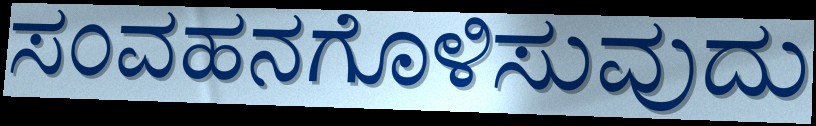
ಸಂವಹನಗೊಳಿಸುವುದು